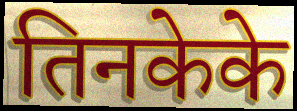
तिनकेके